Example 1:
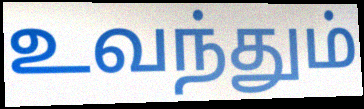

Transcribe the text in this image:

உவந்தும்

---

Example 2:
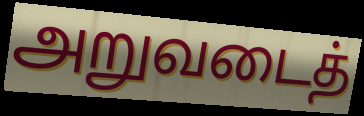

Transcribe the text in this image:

அறுவடைத்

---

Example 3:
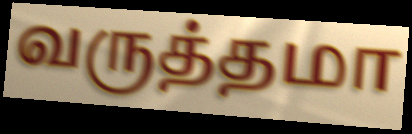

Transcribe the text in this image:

வருத்தமா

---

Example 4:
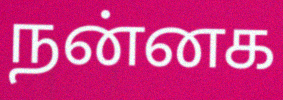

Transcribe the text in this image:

நன்னக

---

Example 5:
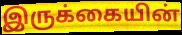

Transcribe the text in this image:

இருக்கையின்